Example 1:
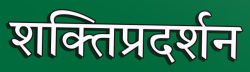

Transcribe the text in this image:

शक्तिप्रदर्शन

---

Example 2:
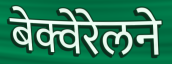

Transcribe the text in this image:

बेक्वेरेलने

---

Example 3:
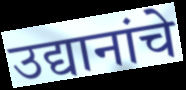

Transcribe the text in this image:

उद्यानांचे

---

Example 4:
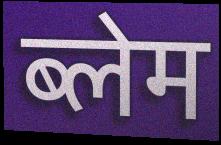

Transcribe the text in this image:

ब्लेम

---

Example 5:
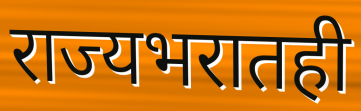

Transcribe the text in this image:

राज्यभरातही